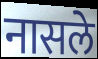
नासले